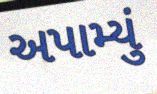
અપામ્યું